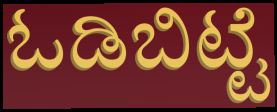
ಓಡಿಬಿಟ್ಟೆ